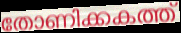
തോണിക്കകത്ത്